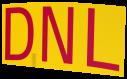
DNL